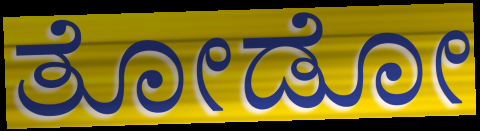
ತೋಡೋ